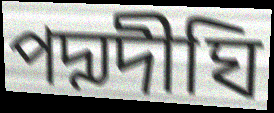
পদ্মদীঘি